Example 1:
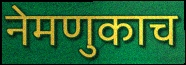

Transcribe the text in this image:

नेमणुकाच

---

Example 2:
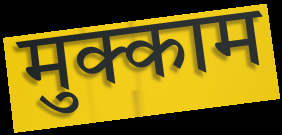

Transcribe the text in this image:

मुक्‍काम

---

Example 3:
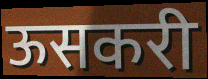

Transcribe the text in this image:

ऊसकरी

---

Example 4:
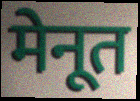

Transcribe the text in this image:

मेनूत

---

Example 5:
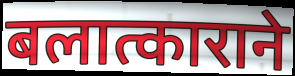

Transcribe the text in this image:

बलात्काराने